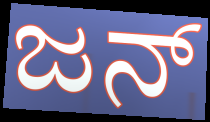
ಜನ್